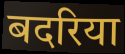
बदरिया